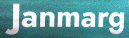
Janmarg